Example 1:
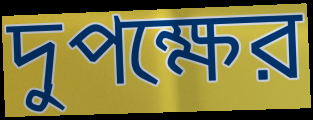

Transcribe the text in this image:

দুপক্ষের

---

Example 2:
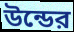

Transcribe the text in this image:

উন্ডের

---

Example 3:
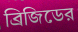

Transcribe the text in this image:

ব্রিজিডের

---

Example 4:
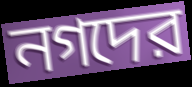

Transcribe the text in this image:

নগদের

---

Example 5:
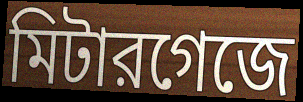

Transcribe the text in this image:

মিটারগেজে